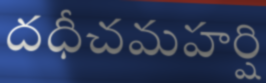
దధీచమహర్షి